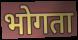
भोगता